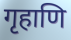
गृहाणि